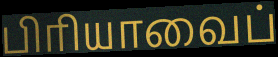
பிரியாவைப்